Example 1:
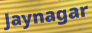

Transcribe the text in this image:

Jaynagar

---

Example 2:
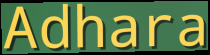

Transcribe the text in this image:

Adhara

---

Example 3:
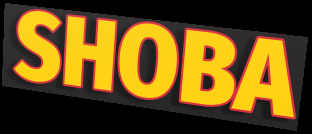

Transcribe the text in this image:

SHOBA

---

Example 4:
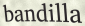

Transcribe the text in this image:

bandilla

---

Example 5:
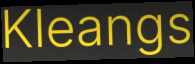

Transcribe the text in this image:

Kleangs